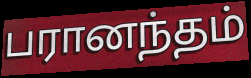
பரானந்தம்